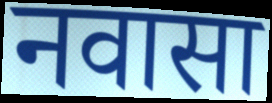
नवासा